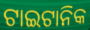
ଟାଇଟାନିକ